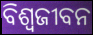
ବିଶ୍ଵଜୀବନ